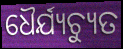
ଧୈର୍ଯ୍ୟଚ୍ୟୁତ